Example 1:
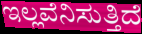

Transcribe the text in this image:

ಇಲ್ಲವೆನಿಸುತ್ತಿದೆ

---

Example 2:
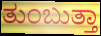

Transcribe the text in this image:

ತುಂಬುತ್ತಾ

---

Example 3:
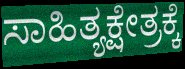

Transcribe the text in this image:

ಸಾಹಿತ್ಯಕ್ಷೇತ್ರಕ್ಕೆ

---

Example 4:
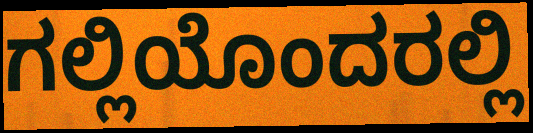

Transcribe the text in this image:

ಗಲ್ಲಿಯೊಂದರಲ್ಲಿ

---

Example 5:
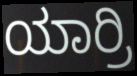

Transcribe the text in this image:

ಯಾರ್ರಿ